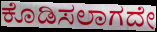
ಕೊಡಿಸಲಾಗದೇ